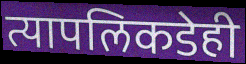
त्यापलिकडेही